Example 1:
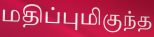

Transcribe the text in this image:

மதிப்புமிகுந்த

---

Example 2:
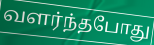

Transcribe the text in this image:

வளர்ந்தபோது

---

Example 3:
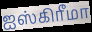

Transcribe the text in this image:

ஐஸ்கிரீமா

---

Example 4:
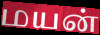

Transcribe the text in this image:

மயன்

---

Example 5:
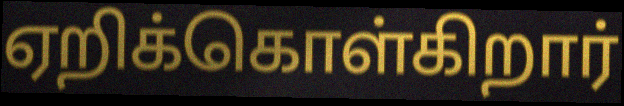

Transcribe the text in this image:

ஏறிக்கொள்கிறார்